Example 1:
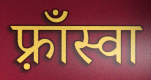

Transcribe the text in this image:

फ़्राँस्वा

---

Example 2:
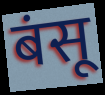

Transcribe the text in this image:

बंसू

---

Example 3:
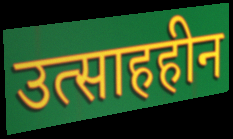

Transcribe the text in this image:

उत्साहहीन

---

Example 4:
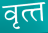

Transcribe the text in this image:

वृत्‍त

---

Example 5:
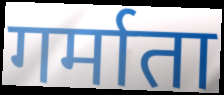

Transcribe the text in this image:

गर्माता